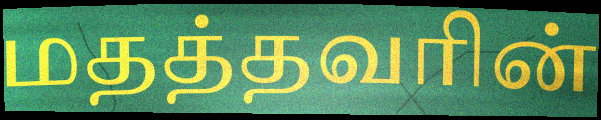
மதத்தவரின்